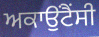
ਅਕਾਉਂਟੈਂਸੀ